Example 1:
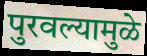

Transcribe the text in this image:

पुरवल्यामुळे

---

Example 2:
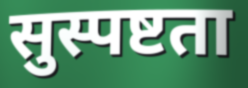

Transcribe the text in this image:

सुस्पष्टता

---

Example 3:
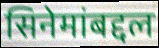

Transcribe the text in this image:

सिनेमांबद्दल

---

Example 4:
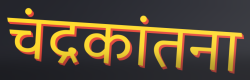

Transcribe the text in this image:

चंद्रकांतना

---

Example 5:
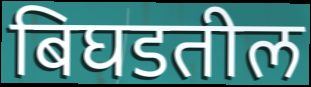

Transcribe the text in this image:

बिघडतील